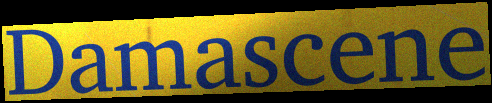
Damascene